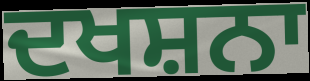
ਦਖਸ਼ਨਾ